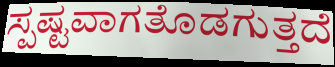
ಸ್ಪಷ್ಟವಾಗತೊಡಗುತ್ತದೆ